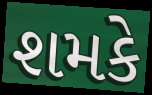
શમકે